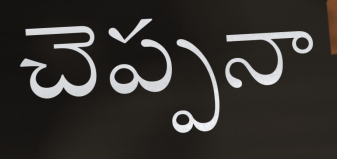
చెప్పనా